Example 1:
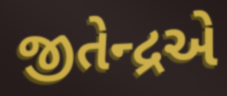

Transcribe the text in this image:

જીતેન્દ્રએ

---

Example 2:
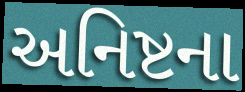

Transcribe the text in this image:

અનિષ્ટના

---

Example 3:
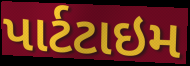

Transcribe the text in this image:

પાર્ટટાઇમ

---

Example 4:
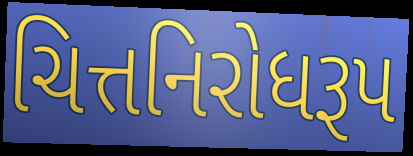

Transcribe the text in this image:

ચિત્તનિરોધરૂપ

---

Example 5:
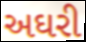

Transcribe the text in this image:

અઘરી